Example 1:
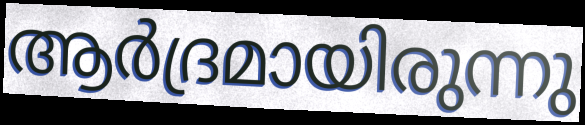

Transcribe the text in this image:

ആർദ്രമായിരുന്നു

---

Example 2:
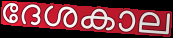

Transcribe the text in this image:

ദേശകാല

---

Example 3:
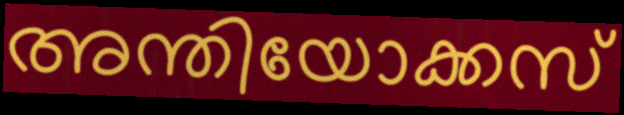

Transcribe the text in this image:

അന്തിയോക്കസ്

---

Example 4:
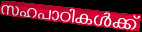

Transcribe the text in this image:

സഹപാഠികൾക്ക്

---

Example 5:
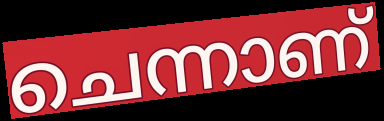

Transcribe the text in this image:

ചെന്നാണ്